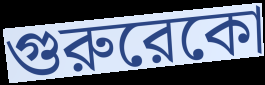
গুরুরেকো